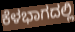
ಕೆಳಭಾಗದಲ್ಲಿ